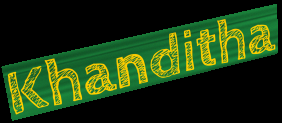
Khanditha